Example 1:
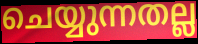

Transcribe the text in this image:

ചെയ്യുന്നതല്ല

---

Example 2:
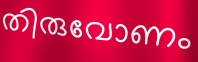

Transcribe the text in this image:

തിരുവോണം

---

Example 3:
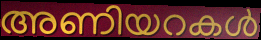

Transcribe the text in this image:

അണിയറകൾ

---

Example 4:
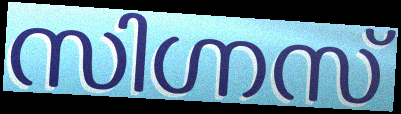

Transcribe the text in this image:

സിഗ്നസ്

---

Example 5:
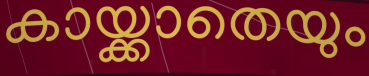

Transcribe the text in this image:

കായ്ക്കാതെയും